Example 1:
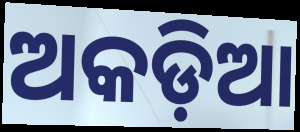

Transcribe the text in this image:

ଅକଡ଼ିଆ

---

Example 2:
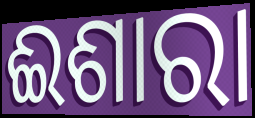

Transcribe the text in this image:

ଈଶାରା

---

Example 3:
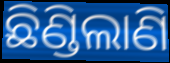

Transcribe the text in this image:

ଛିଣ୍ଡିଲାଣି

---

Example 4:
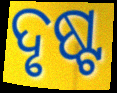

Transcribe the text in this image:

ଦୃଷ୍ଟ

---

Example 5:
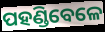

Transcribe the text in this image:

ପହଣ୍ଡିବେଳେ